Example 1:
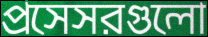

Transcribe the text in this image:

প্রসেসরগুলো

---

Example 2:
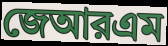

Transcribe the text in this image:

জেআরএম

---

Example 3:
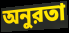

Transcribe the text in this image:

অনুরতা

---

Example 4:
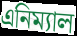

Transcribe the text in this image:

এনিম্যাল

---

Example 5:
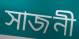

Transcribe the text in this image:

সাজনী